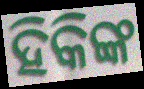
ହିକିଙ୍କ